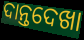
ଦାନ୍ତଦେଖା